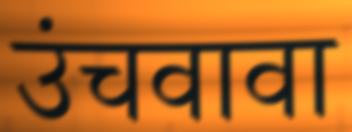
उंचवावा